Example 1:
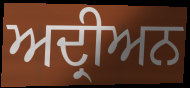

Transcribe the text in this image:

ਅਦ੍ਰੀਅਨ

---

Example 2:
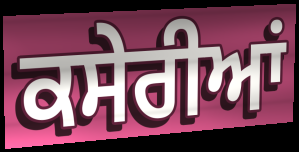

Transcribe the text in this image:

ਕਸੇਰੀਆਂ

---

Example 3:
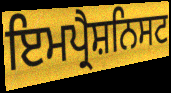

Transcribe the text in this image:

ਇਮਪ੍ਰੈਸ਼ਨਿਸਟ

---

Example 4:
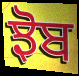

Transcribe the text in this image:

ਝੋਬ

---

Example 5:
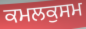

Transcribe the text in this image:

ਕਮਲਕੁਸਮ